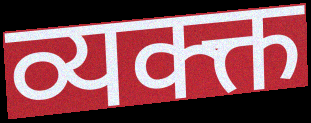
व्यक्क्त